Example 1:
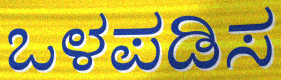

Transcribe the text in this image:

ಒಳಪಡಿಸ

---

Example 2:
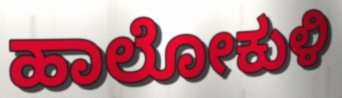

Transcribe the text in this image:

ಹಾಲೋಕುಳಿ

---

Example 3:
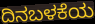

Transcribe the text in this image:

ದಿನಬಳಕೆಯ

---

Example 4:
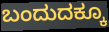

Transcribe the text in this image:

ಬಂದುದಕ್ಕೂ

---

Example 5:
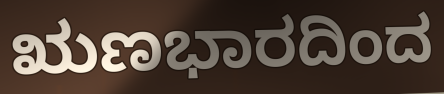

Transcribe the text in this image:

ಋಣಭಾರದಿಂದ